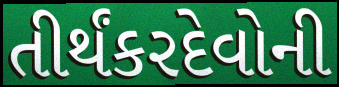
તીર્થંકરદેવોની